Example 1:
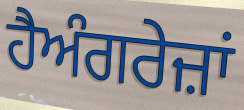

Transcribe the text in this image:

ਹੈਅੰਗਰੇਜ਼ਾਂ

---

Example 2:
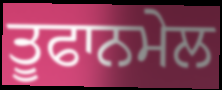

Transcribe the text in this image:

ਤੂਫਾਨਮੇਲ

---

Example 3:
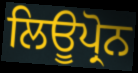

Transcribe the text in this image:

ਲਿਊਪ੍ਰੋਨ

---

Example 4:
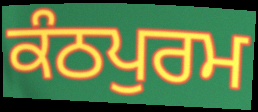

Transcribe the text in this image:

ਕੰਠਪੁਰਮ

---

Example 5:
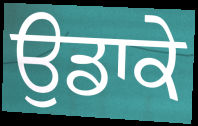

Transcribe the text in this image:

ਉਡਾਕੇ